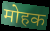
मोहक